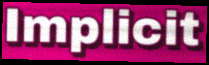
Implicit